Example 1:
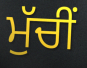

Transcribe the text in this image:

ਮੁੱਚੀਂ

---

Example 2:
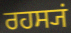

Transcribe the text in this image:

ਰਹਸ੍ਯਂ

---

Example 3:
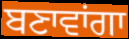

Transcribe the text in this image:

ਬਣਾਵਾਂਗਾ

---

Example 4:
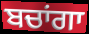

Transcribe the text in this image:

ਬਚਾਂਗਾ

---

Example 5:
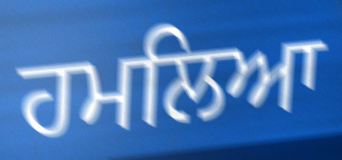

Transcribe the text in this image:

ਹਮਲਿਆ